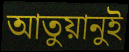
আতুয়ানুই